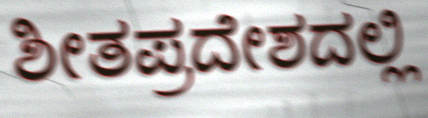
ಶೀತಪ್ರದೇಶದಲ್ಲಿ